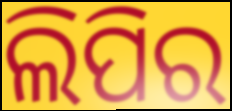
ଲିପିର